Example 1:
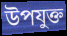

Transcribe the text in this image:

উপযুক্ত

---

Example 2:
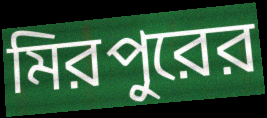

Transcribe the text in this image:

মিরপুরের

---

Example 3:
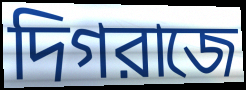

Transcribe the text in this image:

দিগরাজে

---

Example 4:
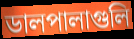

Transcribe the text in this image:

ডালপালাগুলি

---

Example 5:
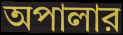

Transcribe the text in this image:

অপালার